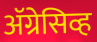
ॲग्रेसिव्ह